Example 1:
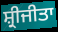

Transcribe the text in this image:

ਸ਼੍ਰੀਜੀਤਾ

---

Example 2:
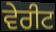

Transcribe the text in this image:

ਵੇਰੀਟ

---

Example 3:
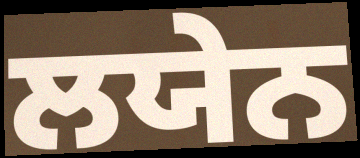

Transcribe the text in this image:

ਲਯੇਨ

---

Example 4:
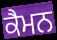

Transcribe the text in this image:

ਕੈਮਨ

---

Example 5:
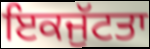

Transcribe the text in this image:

ਇਕਜੁੱਟਤਾ